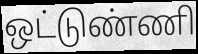
ஒட்டுண்ணி